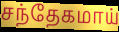
சந்தேகமாய்